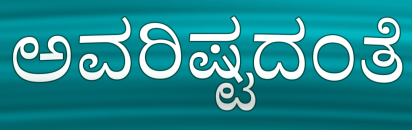
ಅವರಿಷ್ಟದಂತೆ